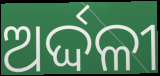
ଅର୍ଦ୍ଦଳୀ